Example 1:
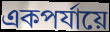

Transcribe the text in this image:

একপর্যায়ে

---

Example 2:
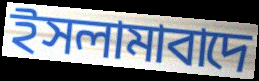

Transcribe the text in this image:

ইসলামাবাদে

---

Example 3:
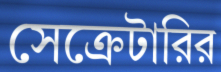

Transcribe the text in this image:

সেক্রেটারির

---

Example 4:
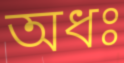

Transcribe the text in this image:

অধঃ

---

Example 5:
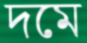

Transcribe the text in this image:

দমে